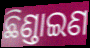
ଛିଣ୍ଡାଇଣ